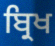
ਬ੍ਰਿਖ